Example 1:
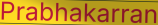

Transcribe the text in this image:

Prabhakarran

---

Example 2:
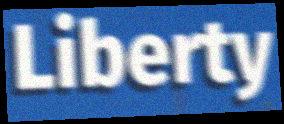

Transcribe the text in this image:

Liberty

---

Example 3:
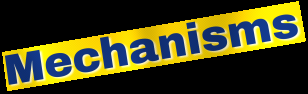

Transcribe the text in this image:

Mechanisms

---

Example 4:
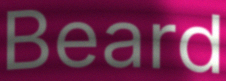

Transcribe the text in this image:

Beard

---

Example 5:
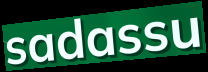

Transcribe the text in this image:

sadassu